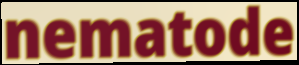
nematode